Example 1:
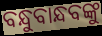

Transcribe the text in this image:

ବନ୍ଧୁବାନ୍ଧବଙ୍କୁ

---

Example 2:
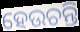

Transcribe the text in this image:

ହେଉଚନ୍ତି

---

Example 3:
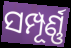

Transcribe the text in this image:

ସମ୍ପୂର୍ଣ୍ଣ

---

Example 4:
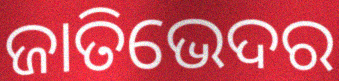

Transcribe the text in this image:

ଜାତିଭେଦର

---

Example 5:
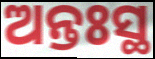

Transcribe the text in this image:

ଅନ୍ତଃସ୍ଥ